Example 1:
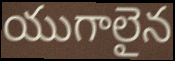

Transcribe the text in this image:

యుగాలైన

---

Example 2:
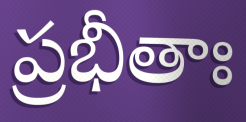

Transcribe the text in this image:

ప్రభీతాః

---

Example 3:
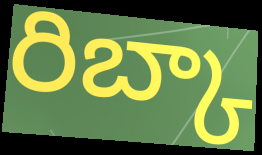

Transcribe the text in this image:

రిబ్కా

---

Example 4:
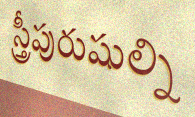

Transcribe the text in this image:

స్త్రీపురుషుల్ని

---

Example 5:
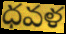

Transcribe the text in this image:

ధవళ